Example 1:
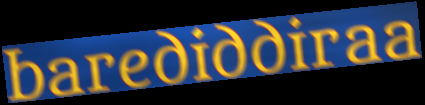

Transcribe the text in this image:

barediddiraa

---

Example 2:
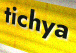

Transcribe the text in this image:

tichya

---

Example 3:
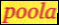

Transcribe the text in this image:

poola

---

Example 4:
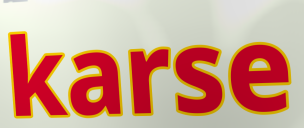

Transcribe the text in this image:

karse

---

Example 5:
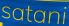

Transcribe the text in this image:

satani